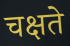
चक्षते